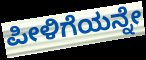
ಪೀಳಿಗೆಯನ್ನೇ